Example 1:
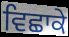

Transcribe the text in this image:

ਵਿਛਾਕੇ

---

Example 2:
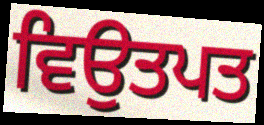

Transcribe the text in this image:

ਵਿਉਤਪਤ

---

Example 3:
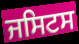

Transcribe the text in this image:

ਜਸਿਟਸ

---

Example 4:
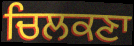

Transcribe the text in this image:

ਚਿਲਕਣਾ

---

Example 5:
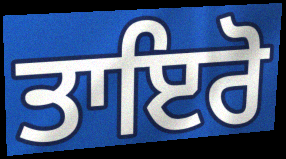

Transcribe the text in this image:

ਤਾਇਰੋ